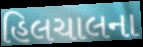
હિલચાલના